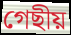
গেছীয়